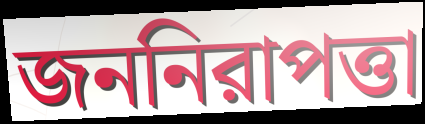
জননিরাপত্তা